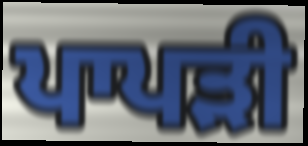
ਪਾਪੜੀ